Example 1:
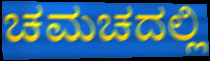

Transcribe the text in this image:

ಚಮಚದಲ್ಲಿ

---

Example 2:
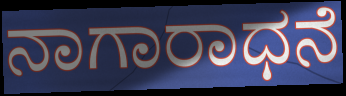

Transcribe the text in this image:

ನಾಗಾರಾಧನೆ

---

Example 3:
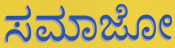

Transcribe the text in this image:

ಸಮಾಜೋ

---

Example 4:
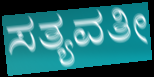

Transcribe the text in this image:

ಸತ್ಯವತೀ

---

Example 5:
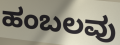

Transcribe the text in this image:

ಹಂಬಲವು